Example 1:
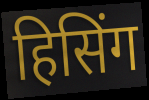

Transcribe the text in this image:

हिसिंग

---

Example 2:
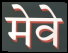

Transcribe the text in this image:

मेवे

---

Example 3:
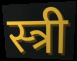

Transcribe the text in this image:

स्‍त्री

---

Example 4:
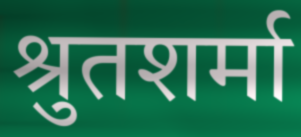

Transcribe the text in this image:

श्रुतशर्मा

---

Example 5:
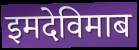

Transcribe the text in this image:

इमदेविमाब